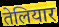
तेलियार